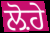
ਲ਼ੋਹੇ